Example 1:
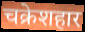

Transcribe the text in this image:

चक्रेशहार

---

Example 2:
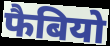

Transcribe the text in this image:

फैबियो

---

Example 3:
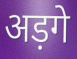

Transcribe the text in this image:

अड़गे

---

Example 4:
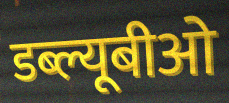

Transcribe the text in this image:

डब्ल्यूबीओ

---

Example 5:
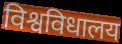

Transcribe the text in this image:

विश्वविधालय